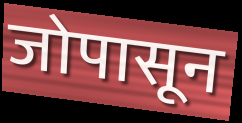
जोपासून